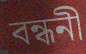
বন্ধনী